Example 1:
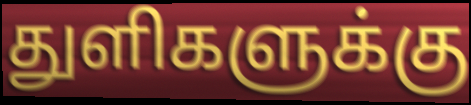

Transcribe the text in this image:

துளிகளுக்கு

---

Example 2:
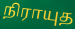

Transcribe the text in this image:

நிராயுத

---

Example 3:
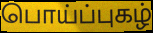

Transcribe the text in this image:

பொய்ப்புகழ்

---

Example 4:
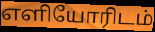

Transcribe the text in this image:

எளியோரிடம்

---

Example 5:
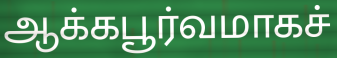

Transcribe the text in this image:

ஆக்கபூர்வமாகச்